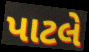
પાટલે